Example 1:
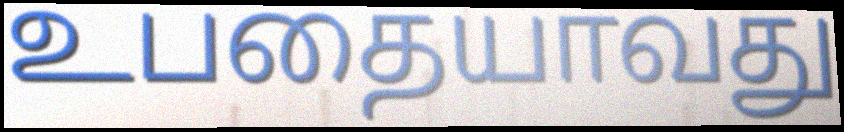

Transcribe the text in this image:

உபதையாவது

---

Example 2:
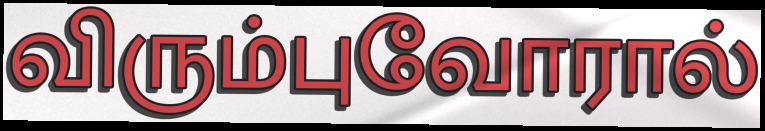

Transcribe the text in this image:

விரும்புவோரால்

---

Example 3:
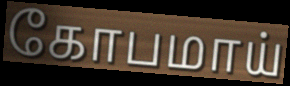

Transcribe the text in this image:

கோபமாய்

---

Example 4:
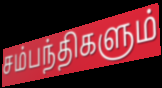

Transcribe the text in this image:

சம்பந்திகளும்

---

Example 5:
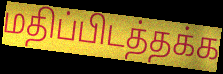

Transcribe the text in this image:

மதிப்பிடத்தக்க